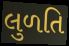
લુળતિ